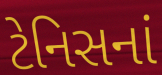
ટેનિસનાં